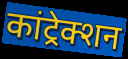
कांट्रेक्शन